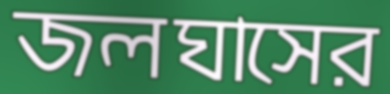
জলঘাসের